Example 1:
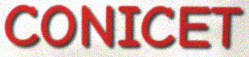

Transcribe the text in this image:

CONICET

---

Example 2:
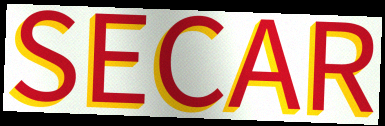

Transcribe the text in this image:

SECAR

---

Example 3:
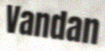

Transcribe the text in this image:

Vandan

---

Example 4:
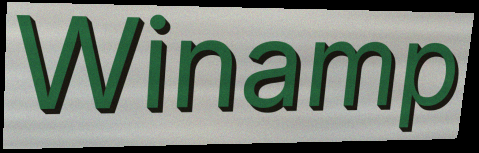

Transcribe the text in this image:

Winamp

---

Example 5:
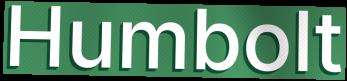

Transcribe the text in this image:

Humbolt